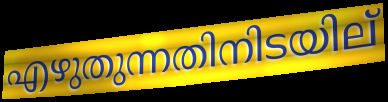
എഴുതുന്നതിനിടയില്